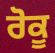
ਰੋਕੂ